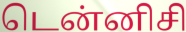
டென்னிசி